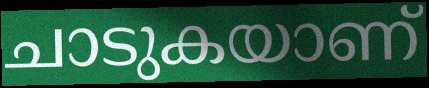
ചാടുകയാണ്